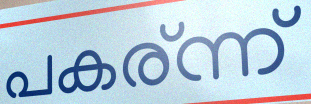
പകര്ന്ന്